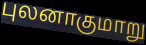
புலனாகுமாறு